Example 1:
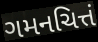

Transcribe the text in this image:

ગમનચિત્તં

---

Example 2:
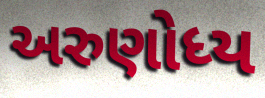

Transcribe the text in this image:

અરુણોધ્ય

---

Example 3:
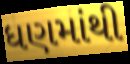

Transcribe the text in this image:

ધણમાંથી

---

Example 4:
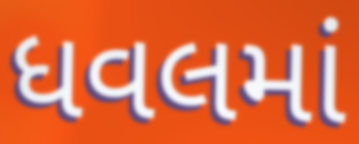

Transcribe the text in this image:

ધવલમાં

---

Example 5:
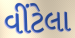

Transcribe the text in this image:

વીંટેલા